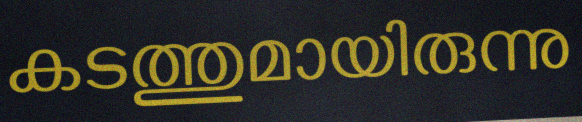
കടത്തുമായിരുന്നു